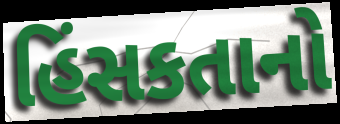
હિંસકતાનો